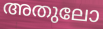
അതുലോ